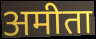
अमीता